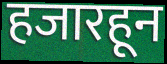
हजारहून